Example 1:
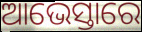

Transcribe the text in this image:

ଆଭେସ୍ତାରେ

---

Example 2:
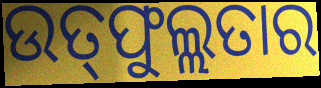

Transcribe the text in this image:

ଉତ୍‌ଫୁଲ୍ଲତାର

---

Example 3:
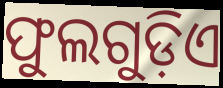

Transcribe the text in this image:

ଫୁଲଗୁଡ଼ିଏ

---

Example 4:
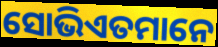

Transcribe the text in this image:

ସୋଭିଏତମାନେ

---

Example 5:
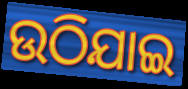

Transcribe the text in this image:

ଉଠିଯାଇ